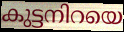
കുട്ടനിറയെ